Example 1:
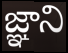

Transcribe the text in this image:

జ్ఞాని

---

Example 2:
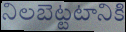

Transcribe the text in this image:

నిలబెట్టటానికి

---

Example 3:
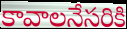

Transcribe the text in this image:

కావాలనేసరికి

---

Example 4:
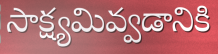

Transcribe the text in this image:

సాక్ష్యమివ్వడానికి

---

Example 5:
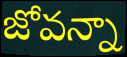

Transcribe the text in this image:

జోవన్నా